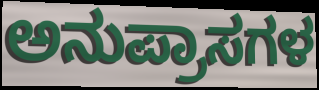
ಅನುಪ್ರಾಸಗಳ